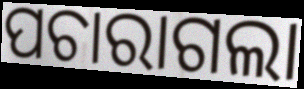
ପଚାରାଗଲା